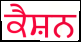
ਕੈਸ਼ਨ